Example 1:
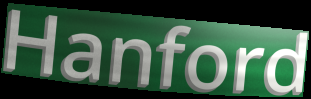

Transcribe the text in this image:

Hanford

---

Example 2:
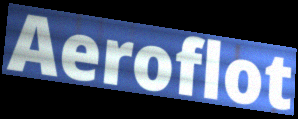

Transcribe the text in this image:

Aeroflot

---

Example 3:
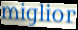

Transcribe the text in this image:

miglior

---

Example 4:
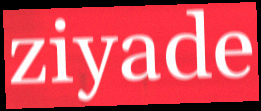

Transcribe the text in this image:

ziyade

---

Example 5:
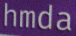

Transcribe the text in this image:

hmda